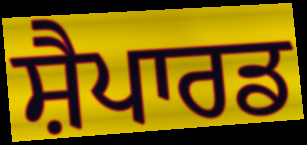
ਸ਼ੈਪਾਰਡ